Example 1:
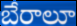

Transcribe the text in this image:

బేరాలూ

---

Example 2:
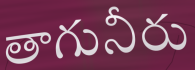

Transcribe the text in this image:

తాగునీరు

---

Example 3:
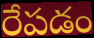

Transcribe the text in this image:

రేపడం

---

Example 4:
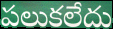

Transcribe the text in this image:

పలుకలేదు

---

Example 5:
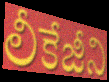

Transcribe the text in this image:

లీకేజీని